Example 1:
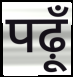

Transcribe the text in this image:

पढ़ूँ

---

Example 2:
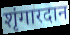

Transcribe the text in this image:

शृंगारदान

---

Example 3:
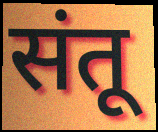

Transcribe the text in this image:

संतू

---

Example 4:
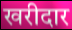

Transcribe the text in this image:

खरीदार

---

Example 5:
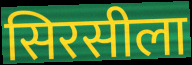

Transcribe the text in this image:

सिरसीला